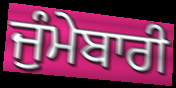
ਜੁੰਮੇਬਾਰੀ